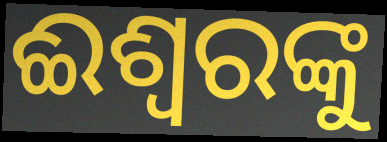
ଈଶ୍ଵରଙ୍କୁ